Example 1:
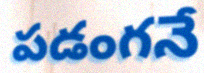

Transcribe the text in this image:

పడంగనే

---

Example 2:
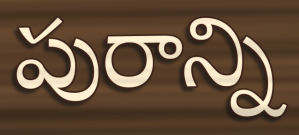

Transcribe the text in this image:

పురాన్ని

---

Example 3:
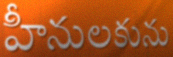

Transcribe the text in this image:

హీనులకును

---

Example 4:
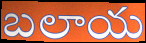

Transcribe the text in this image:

బలాయ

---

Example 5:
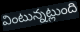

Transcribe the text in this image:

వింటున్నట్లుంది